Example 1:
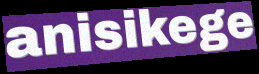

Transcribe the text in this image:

anisikege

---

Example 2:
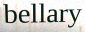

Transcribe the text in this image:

bellary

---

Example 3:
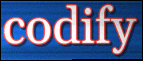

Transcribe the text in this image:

codify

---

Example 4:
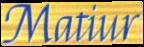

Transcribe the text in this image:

Matiur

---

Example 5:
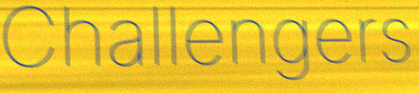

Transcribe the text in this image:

Challengers